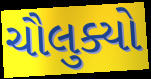
ચૌલુક્યો